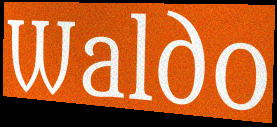
Waldo